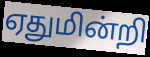
ஏதுமின்றி